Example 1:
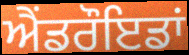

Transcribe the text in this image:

ਐਂਡਰੌਇਡਾਂ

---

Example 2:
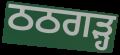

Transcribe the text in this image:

ਠਠਗੜ੍ਹ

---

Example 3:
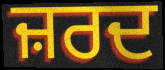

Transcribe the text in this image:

ਜ਼ਰਦ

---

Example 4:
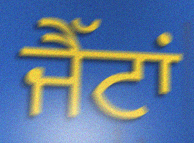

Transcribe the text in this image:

ਜੈੱਟਾਂ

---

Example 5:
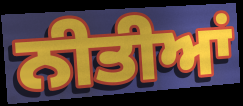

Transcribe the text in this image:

ਨੀਤੀਆਂ